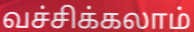
வச்சிக்கலாம்